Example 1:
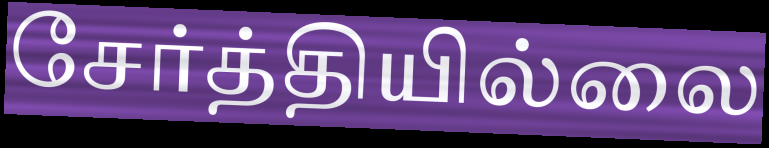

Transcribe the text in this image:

சேர்த்தியில்லை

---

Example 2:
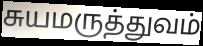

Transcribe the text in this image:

சுயமருத்துவம்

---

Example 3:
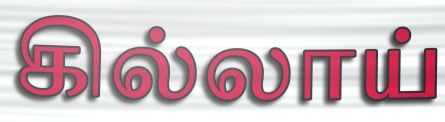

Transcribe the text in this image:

கில்லாய்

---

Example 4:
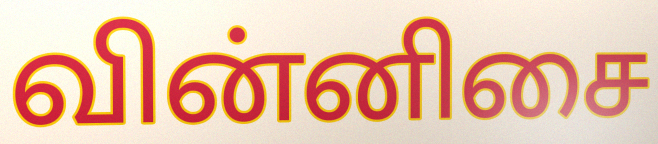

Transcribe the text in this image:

வின்னிசை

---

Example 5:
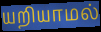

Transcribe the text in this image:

யறியாமல்